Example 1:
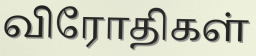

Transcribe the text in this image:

விரோதிகள்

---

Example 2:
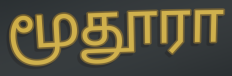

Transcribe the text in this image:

மூதூரா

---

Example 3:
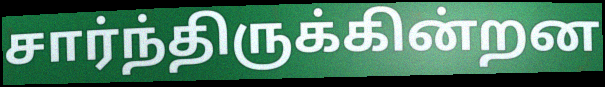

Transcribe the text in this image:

சார்ந்திருக்கின்றன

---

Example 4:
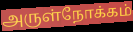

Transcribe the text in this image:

அருள்நோக்கம்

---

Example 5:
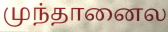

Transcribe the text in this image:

முந்தானைல